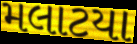
મલાટયા